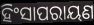
ହିଂସାପରାୟଣ